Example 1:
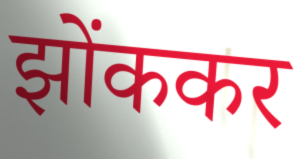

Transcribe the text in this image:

झोंककर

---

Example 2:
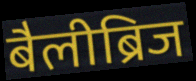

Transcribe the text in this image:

बैलीब्रिज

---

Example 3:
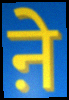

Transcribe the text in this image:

ऩे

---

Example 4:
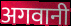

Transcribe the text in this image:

अगवानी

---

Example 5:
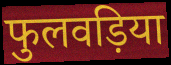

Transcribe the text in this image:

फुलवड़िया